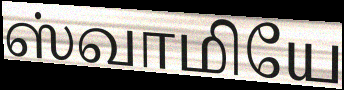
ஸ்வாமியே